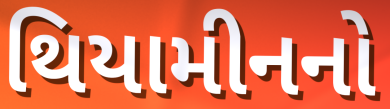
થિયામીનનો